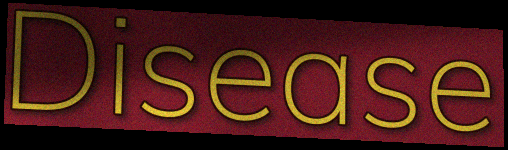
Disease